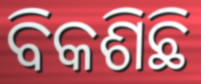
ବିକଶିଛି